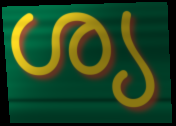
ശ്യ